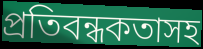
প্রতিবন্ধকতাসহ